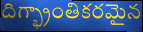
దిగ్భ్రాంతికరమైన